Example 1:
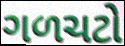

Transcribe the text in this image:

ગળચટો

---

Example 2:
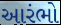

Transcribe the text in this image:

આરંભો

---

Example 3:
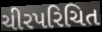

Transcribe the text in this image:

ચીરપરિચિત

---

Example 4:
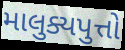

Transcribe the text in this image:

માલુક્યપુત્તો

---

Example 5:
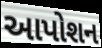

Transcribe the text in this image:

આપોશન